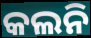
କଲନି